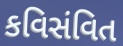
કવિસંવિત